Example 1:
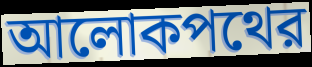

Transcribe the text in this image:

আলোকপথের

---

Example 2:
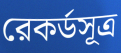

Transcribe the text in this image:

রেকর্ডসূত্র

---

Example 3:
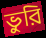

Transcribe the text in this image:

ভুরি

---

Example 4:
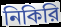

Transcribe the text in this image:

নিকিরি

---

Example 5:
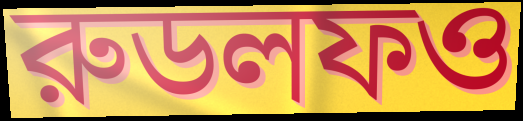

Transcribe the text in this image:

রুডলফও